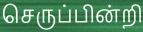
செருப்பின்றி